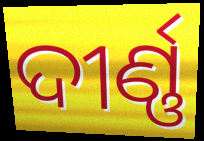
ଦୀର୍ଣ୍ଣ